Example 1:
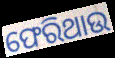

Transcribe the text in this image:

ଫେରିଥାଉ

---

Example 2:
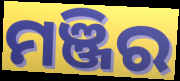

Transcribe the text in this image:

ମଞ୍ଜିର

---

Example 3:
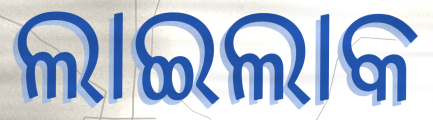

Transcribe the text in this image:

ଲାଇଲାକ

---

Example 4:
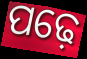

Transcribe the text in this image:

ପଢ଼େ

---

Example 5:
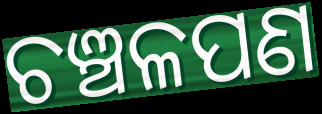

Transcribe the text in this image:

ଚଞ୍ଚଳପଣ